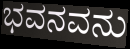
ಭವನವನು